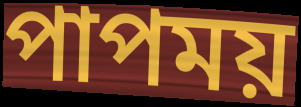
পাপময়